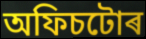
অফিচটোৰ